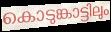
കൊടുങ്കാട്ടിലും